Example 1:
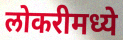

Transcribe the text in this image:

लोकरीमध्ये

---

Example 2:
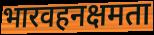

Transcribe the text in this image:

भारवहनक्षमता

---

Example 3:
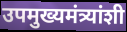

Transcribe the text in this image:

उपमुख्यमंत्र्यांशी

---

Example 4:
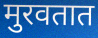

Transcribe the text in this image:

मुरवतात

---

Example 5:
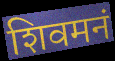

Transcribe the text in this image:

शिवमनं